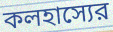
কলহাস্যের